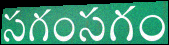
సగంసగం